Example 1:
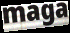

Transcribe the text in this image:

maga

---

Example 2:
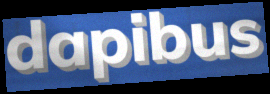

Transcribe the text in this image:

dapibus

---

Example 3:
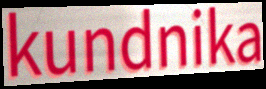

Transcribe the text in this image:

kundnika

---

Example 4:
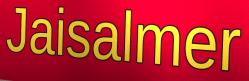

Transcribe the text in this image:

Jaisalmer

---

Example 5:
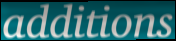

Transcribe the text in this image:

additions